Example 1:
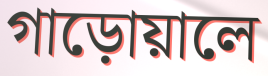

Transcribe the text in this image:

গাড়োয়ালে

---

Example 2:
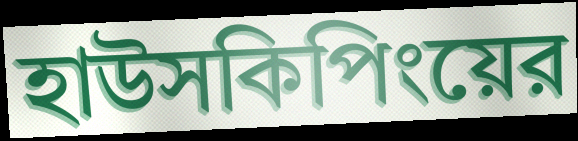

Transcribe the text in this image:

হাউসকিপিংয়ের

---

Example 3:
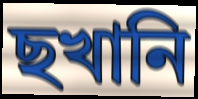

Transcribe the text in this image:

ছখানি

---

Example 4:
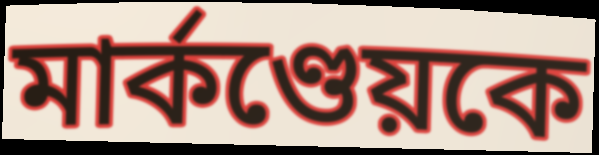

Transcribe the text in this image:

মার্কণ্ডেয়কে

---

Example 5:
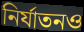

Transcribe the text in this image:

নির্যাতনও